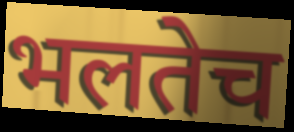
भलतेच